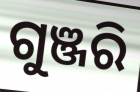
ଗୁଞ୍ଜରି